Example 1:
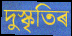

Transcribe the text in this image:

দুস্কৃতিৰ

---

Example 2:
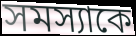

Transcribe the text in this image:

সমস্যাকে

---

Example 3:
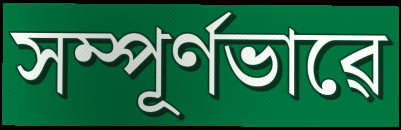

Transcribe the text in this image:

সম্পূৰ্ণভাৱে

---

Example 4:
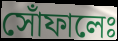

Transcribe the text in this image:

সোঁফালেঃ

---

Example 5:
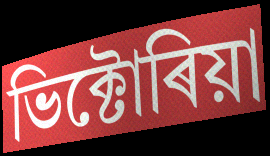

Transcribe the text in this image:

ভিক্টোৰিয়া